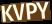
KVPY